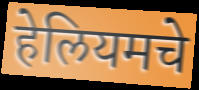
हेलियमचे